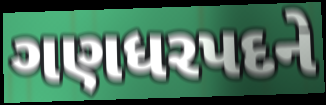
ગણધરપદને